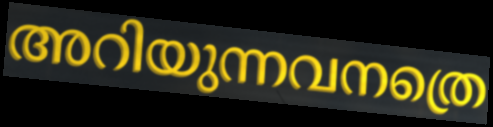
അറിയുന്നവനത്രെ